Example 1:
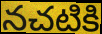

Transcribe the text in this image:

నచటికి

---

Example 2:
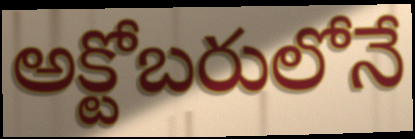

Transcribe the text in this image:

అక్టోబరులోనే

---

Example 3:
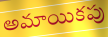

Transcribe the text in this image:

అమాయికపు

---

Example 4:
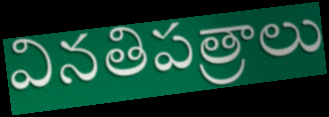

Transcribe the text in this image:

వినతిపత్రాలు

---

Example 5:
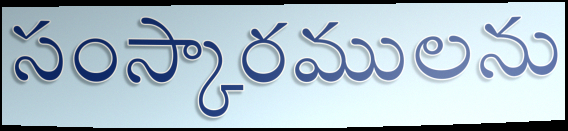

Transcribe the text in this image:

సంస్కారములను